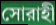
সোরাহী